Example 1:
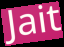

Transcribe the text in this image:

Jait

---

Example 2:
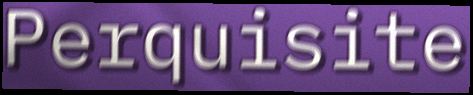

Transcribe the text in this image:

Perquisite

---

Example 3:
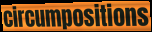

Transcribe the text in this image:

circumpositions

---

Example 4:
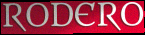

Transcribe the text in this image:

RODERO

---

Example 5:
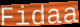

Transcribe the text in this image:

Fidaa